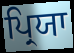
ਪ੍ਰਿਯਾ